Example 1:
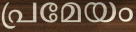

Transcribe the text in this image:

പ്രമേയം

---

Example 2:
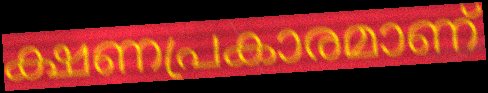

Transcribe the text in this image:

ക്ഷണപ്രകാരമാണ്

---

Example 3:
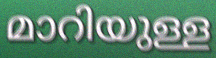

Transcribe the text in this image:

മാറിയുള്ള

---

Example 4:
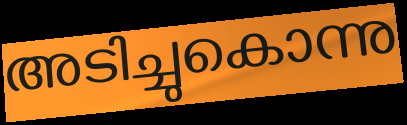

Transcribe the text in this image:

അടിച്ചുകൊന്നു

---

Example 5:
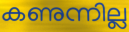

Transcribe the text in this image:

കണുന്നില്ല